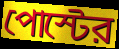
পোস্টের